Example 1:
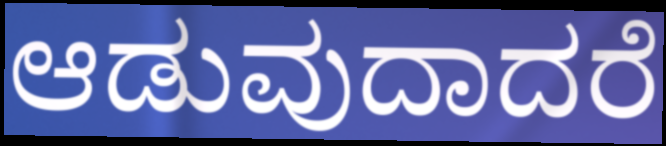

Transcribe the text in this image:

ಆಡುವುದಾದರೆ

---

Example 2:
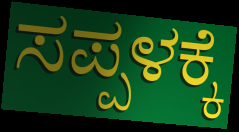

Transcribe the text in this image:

ಸಪ್ಪಳಕ್ಕೆ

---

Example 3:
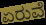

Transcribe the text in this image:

ಏರುವೆ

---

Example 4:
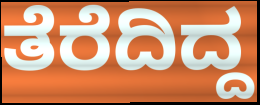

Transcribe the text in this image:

ತೆರೆದಿದ್ದ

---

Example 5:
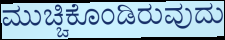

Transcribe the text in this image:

ಮುಚ್ಚಿಕೊಂಡಿರುವುದು